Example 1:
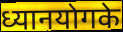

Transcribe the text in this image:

ध्यानयोगके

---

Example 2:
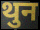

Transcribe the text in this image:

थुन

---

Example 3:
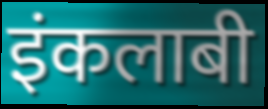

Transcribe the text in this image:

इंकलाबी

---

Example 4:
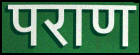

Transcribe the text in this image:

पराण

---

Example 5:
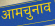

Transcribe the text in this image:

आमचुनाव